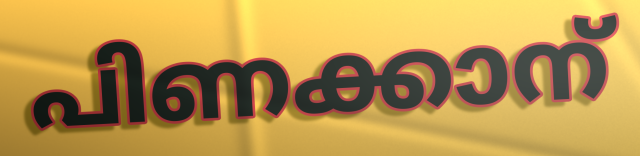
പിണക്കാന്